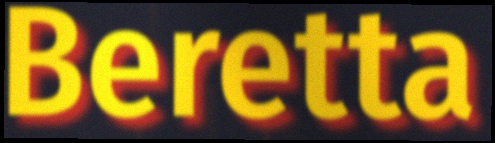
Beretta